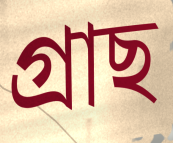
গ্ৰাছ